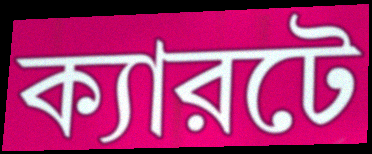
ক্যারটে